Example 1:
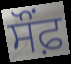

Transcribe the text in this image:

ਸੌਂਫ਼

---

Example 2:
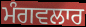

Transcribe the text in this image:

ਮੰਗਵਲਾਰ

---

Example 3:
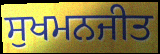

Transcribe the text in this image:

ਸੁਖਮਨਜੀਤ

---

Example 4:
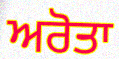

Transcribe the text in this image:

ਅਰੋਤਾ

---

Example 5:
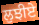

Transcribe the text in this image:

ਲੁਝੀਏ